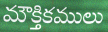
మౌక్తికములు